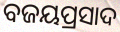
ବଜୟପ୍ରସାଦ